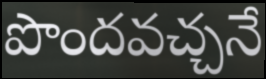
పొందవచ్చనే